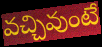
వచ్చివుంటే